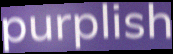
purplish